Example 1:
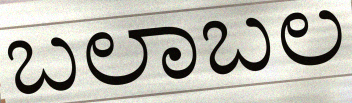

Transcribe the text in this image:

ಬಲಾಬಲ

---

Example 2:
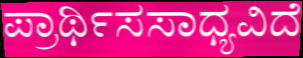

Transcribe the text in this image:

ಪ್ರಾರ್ಥಿಸಸಾಧ್ಯವಿದೆ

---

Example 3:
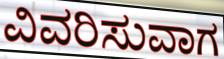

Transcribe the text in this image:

ವಿವರಿಸುವಾಗ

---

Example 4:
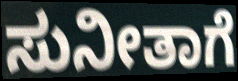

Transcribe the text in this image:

ಸುನೀತಾಗೆ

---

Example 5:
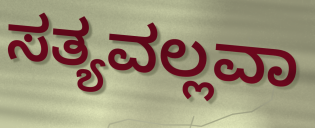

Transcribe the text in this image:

ಸತ್ಯವಲ್ಲವಾ